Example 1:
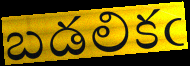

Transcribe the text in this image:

బడలికఁ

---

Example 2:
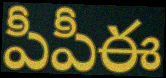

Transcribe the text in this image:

పీపీఈ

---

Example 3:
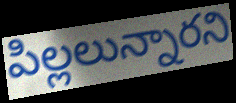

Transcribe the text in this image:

పిల్లలున్నారని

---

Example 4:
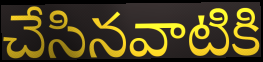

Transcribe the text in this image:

చేసినవాటికి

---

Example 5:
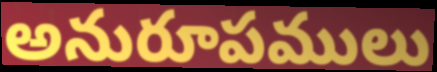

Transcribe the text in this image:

అనురూపములు